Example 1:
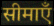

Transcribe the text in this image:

सीमाएँ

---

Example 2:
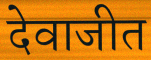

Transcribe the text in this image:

देवाजीत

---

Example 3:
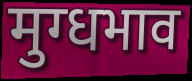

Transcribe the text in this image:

मुग्धभाव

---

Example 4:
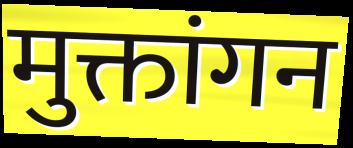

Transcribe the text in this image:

मुक्तांगन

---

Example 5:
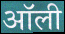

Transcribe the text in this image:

ऑली